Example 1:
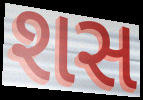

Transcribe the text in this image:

શસ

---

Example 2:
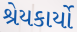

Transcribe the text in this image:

શ્રેયકાર્યો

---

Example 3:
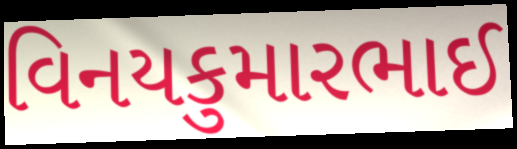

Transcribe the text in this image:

વિનયકુમારભાઈ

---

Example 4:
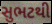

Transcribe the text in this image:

સુભટથી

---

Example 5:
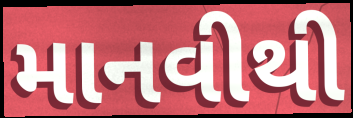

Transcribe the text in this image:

માનવીથી